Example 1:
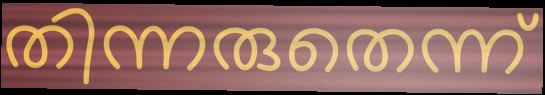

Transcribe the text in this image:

തിന്നരുതെന്ന്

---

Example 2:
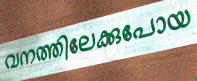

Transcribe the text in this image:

വനത്തിലേക്കുപോയ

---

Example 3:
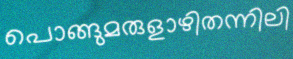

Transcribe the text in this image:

പൊങ്ങുമരുളാഴിതന്നിലി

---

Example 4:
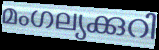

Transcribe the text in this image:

മംഗല്യക്കുറി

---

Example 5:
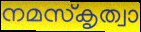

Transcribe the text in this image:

നമസ്കൃത്വാ